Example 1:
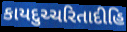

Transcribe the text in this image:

કાયદુચ્ચરિતાદીહિ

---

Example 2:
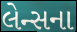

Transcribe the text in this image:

લેન્સના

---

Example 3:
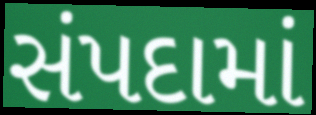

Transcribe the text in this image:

સંપદામાં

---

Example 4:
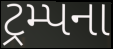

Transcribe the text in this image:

ટ્રમ્પના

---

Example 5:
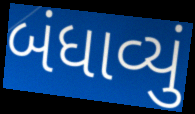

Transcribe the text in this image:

બંધાવ્યું